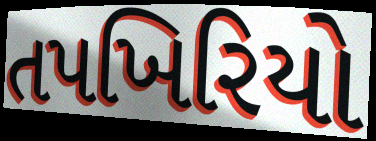
તપખિરિયો